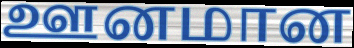
ஊனமான